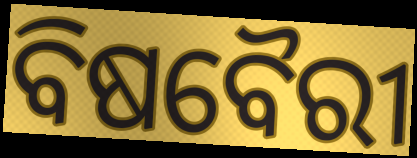
ବିଷବୈରୀ